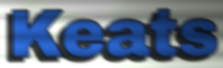
Keats